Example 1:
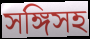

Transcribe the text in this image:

সঙ্গিসহ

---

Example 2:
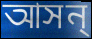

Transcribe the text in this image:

আসন্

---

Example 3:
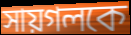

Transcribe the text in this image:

সায়গলকে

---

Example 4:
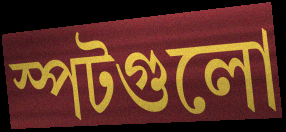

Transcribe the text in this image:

স্পটগুলো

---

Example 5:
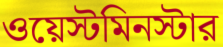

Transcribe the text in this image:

ওয়েস্টমিনস্টার